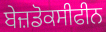
ਬੇਜ਼ਡੋਕਸੀਫੀਨ